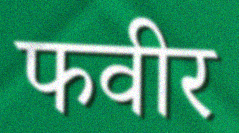
फवीर